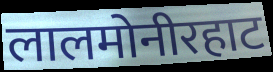
लालमोनीरहाट